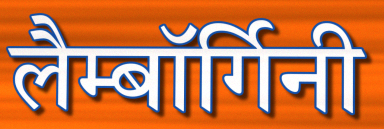
लैम्बॉर्गिनी